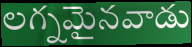
లగ్నమైనవాడు